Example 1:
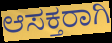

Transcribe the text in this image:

ಆಸಕ್ತರಾಗಿ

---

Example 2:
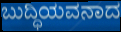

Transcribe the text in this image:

ಬುದ್ಧಿಯವನಾದ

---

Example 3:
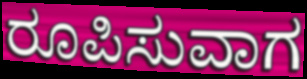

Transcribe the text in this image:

ರೂಪಿಸುವಾಗ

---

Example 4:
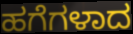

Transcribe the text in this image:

ಹಗೆಗಳಾದ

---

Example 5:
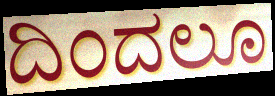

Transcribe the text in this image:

ದಿಂದಲೂ